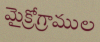
మైక్రోగ్రాముల